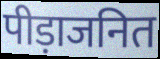
पीड़ाजनित